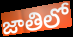
జాతిలో